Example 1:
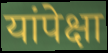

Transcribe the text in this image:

यांपेक्षा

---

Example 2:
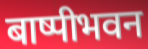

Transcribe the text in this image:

बाष्पीभवन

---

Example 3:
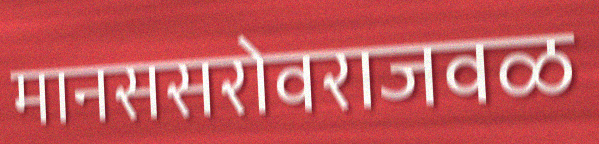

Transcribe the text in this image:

मानससरोवराजवळ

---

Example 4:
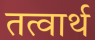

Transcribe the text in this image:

तत्वार्थ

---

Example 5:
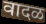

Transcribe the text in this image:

वादळ